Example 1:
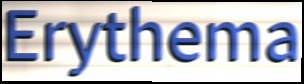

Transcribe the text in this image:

Erythema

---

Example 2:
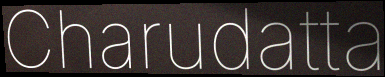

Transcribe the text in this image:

Charudatta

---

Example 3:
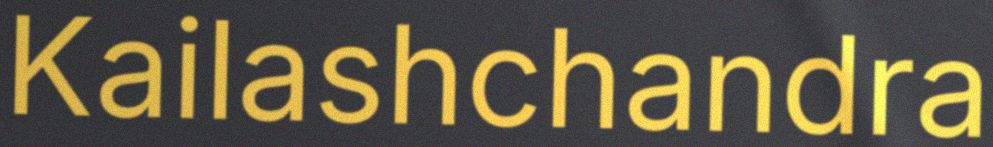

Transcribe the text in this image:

Kailashchandra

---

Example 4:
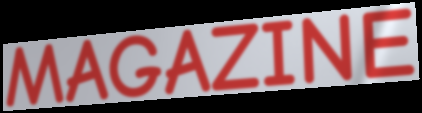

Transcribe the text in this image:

MAGAZINE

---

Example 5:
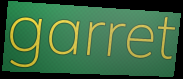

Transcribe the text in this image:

garret